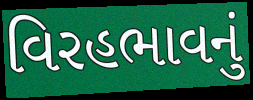
વિરહભાવનું